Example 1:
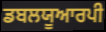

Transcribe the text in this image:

ਡਬਲਯੂਆਰਪੀ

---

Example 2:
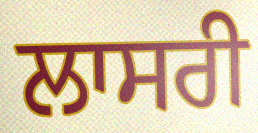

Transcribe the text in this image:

ਲਾਸਰੀ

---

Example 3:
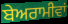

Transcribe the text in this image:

ਬੇਅਰਾਮੀਵਾਂ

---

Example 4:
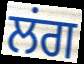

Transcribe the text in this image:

ਲਂਗ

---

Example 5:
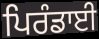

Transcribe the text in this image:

ਪਿਰੰਡਾਈ